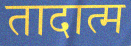
तादात्म